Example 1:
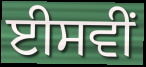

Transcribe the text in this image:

ਈਸਵੀਂ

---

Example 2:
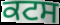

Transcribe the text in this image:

ਕਟਸ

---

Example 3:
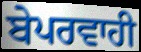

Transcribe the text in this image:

ਬੇਪਰਵਾਹੀ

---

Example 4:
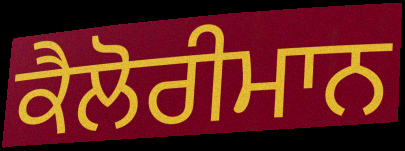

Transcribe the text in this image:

ਕੈਲੋਰੀਮਾਨ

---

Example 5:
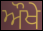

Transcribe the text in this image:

ਔਖੇ